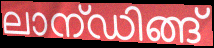
ലാന്ഡിങ്ങ്